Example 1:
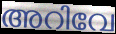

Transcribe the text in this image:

അറിവേ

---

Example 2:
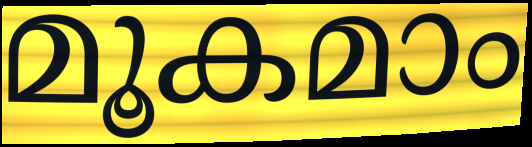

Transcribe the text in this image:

മൂകമാം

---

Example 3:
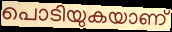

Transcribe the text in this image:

പൊടിയുകയാണ്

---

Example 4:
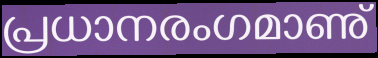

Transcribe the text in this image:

പ്രധാനരംഗമാണു്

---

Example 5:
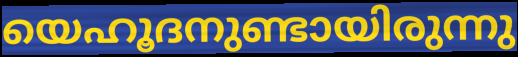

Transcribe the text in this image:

യെഹൂദനുണ്ടായിരുന്നു